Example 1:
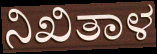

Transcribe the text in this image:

ನಿಖಿತಾಳ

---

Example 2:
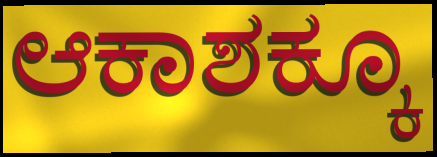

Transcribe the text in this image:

ಆಕಾಶಕ್ಕೂ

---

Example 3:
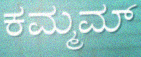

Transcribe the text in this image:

ಕಮ್ಮಮ್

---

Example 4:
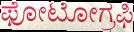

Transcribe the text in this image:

ಫೋಟೋಗ್ರಫಿ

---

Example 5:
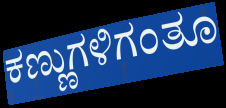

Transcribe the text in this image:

ಕಣ್ಣುಗಳಿಗಂತೂ